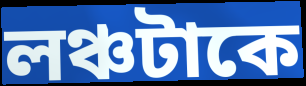
লঞ্চটাকে